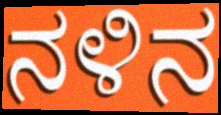
ನಳಿನ